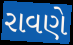
રાવણે